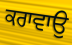
ਕਰਾਵਾਉ